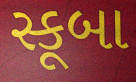
સ્કૂબા